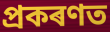
প্ৰকৰণত